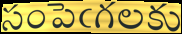
సంపెఁగలకు